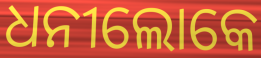
ଧନୀଲୋକେ